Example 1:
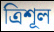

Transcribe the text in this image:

ত্রিশূল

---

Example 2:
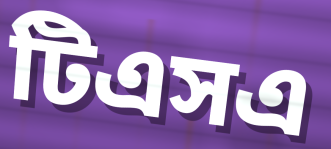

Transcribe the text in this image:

টিএসএ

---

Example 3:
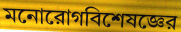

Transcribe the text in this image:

মনোরোগবিশেষজ্ঞের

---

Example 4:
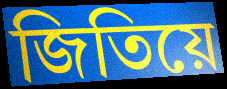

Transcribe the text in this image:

জিতিয়ে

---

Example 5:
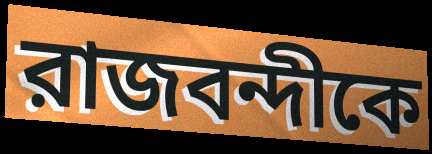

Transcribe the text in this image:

রাজবন্দীকে